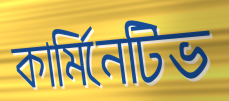
কার্মিনেটিভ